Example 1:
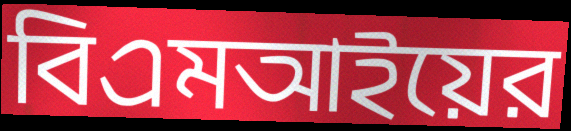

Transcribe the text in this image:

বিএমআইয়ের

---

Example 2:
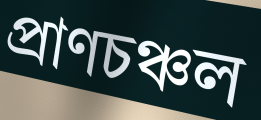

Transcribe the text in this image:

প্রাণচঞ্চল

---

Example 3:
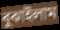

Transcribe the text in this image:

বুঝাইলাম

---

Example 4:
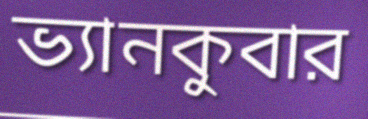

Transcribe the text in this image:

ভ্যানকুবার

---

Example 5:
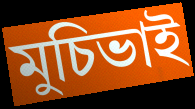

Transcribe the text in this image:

মুচিভাই